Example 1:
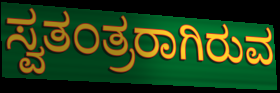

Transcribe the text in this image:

ಸ್ವತಂತ್ರರಾಗಿರುವ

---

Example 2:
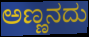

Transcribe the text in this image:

ಅಣ್ಣನದು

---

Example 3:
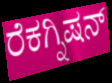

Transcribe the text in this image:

ರೆಕಗ್ನಿಷನ್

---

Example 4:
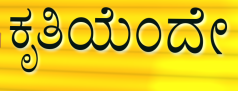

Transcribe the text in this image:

ಕೃತಿಯೆಂದೇ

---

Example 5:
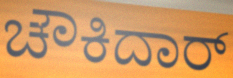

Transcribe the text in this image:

ಚೌಕಿದಾರ್